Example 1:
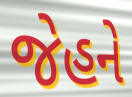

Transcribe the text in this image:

જેહને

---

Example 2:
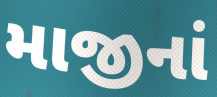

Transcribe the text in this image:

માજીનાં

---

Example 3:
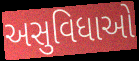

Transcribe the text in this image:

અસુવિધાઓ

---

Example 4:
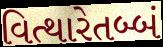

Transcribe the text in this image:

વિત્થારેતબ્બં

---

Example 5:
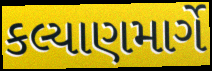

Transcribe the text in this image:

કલ્યાણમાર્ગે